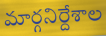
మార్గనిర్దేశాల